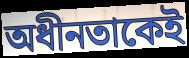
অধীনতাকেই